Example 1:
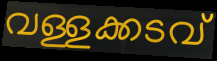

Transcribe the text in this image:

വള്ളക്കടവ്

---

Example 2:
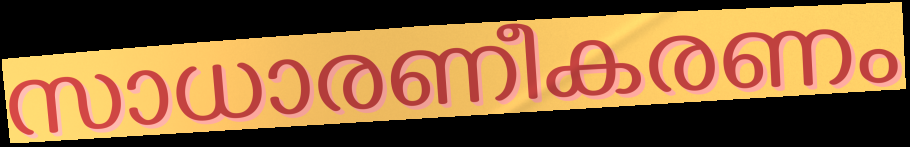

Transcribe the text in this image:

സാധാരണീകരണം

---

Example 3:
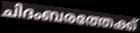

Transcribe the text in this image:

ചിദംബരത്തേക്ക്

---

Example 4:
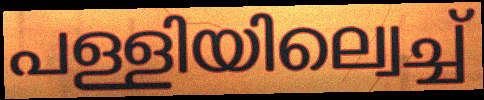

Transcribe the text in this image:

പള്ളിയില്വെച്ച്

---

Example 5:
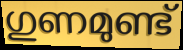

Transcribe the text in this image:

ഗുണമുണ്ട്